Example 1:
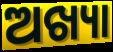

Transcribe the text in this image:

ଅଖ୍ୟା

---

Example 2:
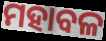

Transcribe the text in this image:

ମହାବଳ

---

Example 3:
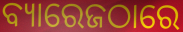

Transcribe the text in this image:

ବ୍ୟାରେଜଠାରେ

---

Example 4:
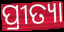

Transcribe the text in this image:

ପ୍ରୀତ୍ୟା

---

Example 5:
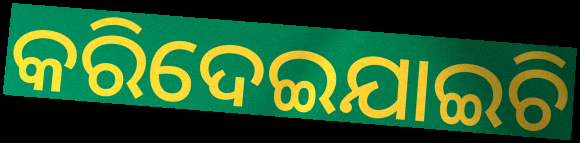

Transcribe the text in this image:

କରିଦେଇଯାଇଚି